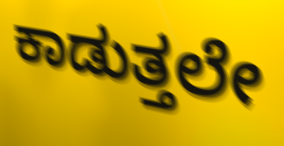
ಕಾಡುತ್ತಲೇ